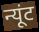
न्यूंट